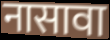
नासावा